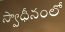
స్వాధీనంలో